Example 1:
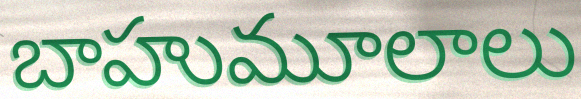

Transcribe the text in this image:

బాహుమూలాలు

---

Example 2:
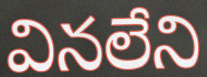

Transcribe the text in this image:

వినలేని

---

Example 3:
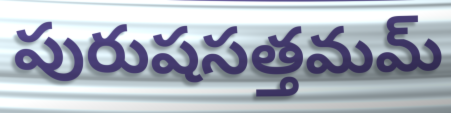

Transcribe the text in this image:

పురుషసత్తమమ్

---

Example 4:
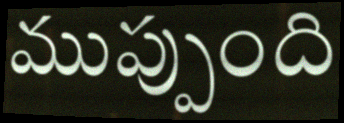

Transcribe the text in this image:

ముప్పుంది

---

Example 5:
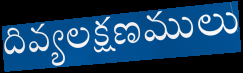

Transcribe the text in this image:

దివ్యలక్షణములు